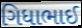
ગિધાભાઈ